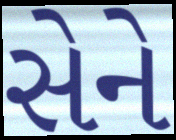
સેને